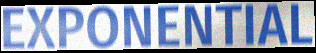
EXPONENTIAL